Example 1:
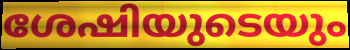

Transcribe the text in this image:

ശേഷിയുടെയും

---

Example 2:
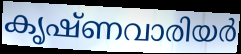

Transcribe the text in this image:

കൃഷ്ണവാരിയർ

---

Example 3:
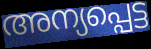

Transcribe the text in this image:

അന്യപ്പെട്ട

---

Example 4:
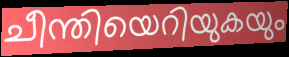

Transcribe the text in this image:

ചീന്തിയെറിയുകയും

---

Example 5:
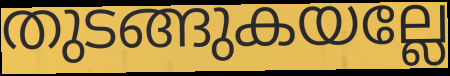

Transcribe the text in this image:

തുടങ്ങുകയല്ലേ